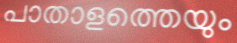
പാതാളത്തെയും